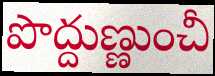
పొద్దుణ్ణుంచీ